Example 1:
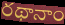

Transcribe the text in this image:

రథానాం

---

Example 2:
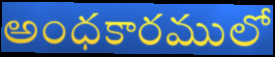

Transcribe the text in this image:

అంధకారములో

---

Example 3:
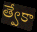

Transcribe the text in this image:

త్వేకా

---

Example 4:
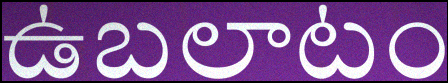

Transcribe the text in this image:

ఉబలాటం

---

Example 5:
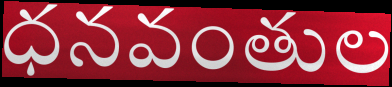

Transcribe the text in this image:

ధనవంతుల